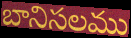
బానిసలము